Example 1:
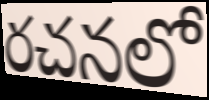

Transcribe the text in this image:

రచనలో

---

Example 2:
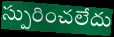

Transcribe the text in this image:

స్పురించలేదు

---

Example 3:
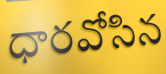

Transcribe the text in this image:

ధారవోసిన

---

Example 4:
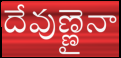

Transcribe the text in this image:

దేవుణ్ణైనా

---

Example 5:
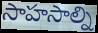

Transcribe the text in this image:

సాహసాల్ని